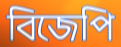
বিজেপি